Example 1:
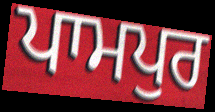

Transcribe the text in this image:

ਪਾਮਪੁਰ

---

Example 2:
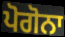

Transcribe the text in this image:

ਪੋਗੋਨਾ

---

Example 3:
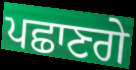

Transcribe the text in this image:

ਪਛਾਣਗੇ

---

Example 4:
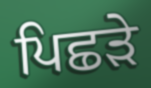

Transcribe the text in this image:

ਪਿਛੜੇ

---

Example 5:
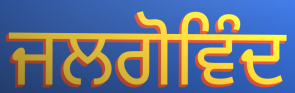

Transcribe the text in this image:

ਜਲਗੋਵਿੰਦ